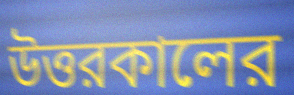
উত্তরকালের